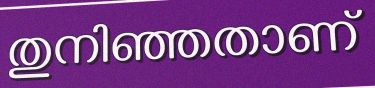
തുനിഞ്ഞതാണ്